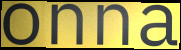
onna